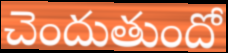
చెందుతుందో